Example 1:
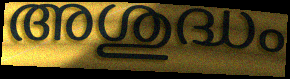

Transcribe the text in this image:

അശുദ്ധം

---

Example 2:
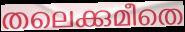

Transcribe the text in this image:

തലെക്കുമീതെ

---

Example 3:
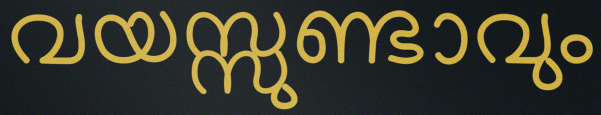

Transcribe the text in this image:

വയസ്സുണ്ടാവും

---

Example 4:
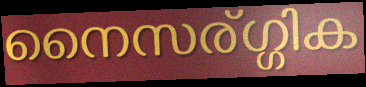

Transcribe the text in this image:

നൈസര്ഗ്ഗിക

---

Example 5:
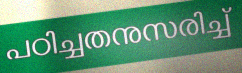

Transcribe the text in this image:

പഠിച്ചതനുസരിച്ച്